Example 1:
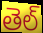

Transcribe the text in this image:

తెల్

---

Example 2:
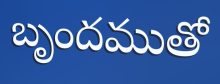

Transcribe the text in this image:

బృందముతో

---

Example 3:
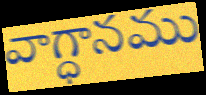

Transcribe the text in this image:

వాగ్ధానము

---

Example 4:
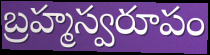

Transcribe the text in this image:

బ్రహ్మస్వరూపం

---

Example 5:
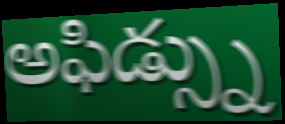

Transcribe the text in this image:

అఫిడ్స్ను